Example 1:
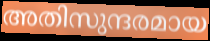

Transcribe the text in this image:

അതിസുന്ദരമായ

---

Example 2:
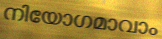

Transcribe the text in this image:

നിയോഗമാവാം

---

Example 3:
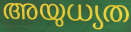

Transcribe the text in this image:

അയുധ്യത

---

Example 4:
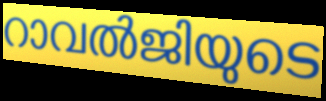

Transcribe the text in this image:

റാവൽജിയുടെ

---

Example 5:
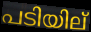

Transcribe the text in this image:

പടിയില്